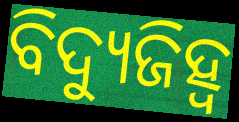
ବିଦ୍ୟୁଜିହ୍ୱ